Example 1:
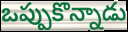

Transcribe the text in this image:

ఒప్పుకొన్నాడు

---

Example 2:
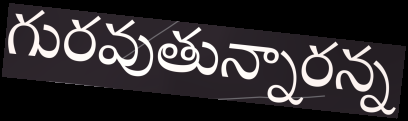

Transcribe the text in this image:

గురవుతున్నారన్న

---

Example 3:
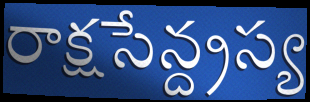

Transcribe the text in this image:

రాక్షసేన్ద్రస్య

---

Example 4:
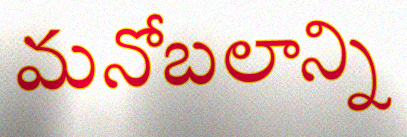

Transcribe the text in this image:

మనోబలాన్ని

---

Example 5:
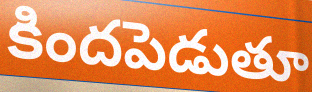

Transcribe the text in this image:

కిందపెడుతూ